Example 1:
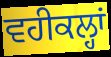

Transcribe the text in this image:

ਵਹੀਕਲ੍ਹਾਂ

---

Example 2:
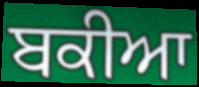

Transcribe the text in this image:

ਬਕੀਆ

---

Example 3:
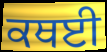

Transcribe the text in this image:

ਕਥਈ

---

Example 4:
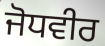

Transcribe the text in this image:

ਜੋਧਵੀਰ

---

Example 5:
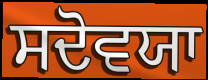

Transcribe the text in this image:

ਸਦੋਵਯਾ